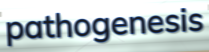
pathogenesis